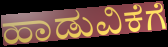
ಹಾಡುವಿಕೆಗೆ